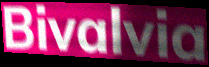
Bivalvia